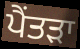
ਪੈਂਤੜਾ